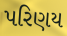
પરિણય